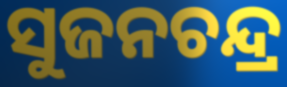
ସୁଜନଚନ୍ଦ୍ର